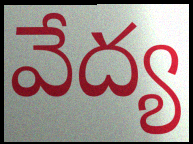
వేద్య